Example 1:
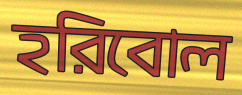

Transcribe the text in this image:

হরিবোল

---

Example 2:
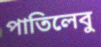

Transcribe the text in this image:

পাতিলেবু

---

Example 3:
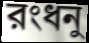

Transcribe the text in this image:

রংধনু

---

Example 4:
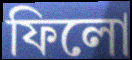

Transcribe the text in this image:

ফিলো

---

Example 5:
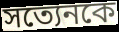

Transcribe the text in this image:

সত্যেনকে